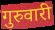
गुरुवारी